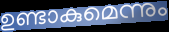
ഉണ്ടാകുമെന്നും